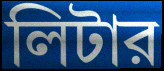
লিটার